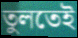
তুলতেই